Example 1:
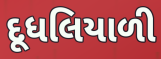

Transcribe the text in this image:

દૂધલિયાળી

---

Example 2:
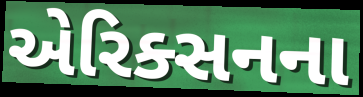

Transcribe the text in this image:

એરિક્સનના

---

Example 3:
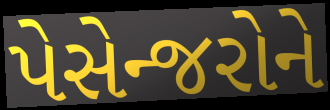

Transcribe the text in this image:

પેસેન્જરોને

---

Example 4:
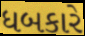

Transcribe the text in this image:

ધબકારે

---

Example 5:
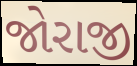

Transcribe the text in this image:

જોરાજી